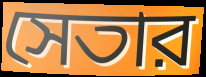
সেতার